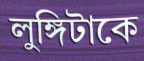
লুঙ্গিটাকে